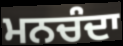
ਮਨਚੰਦਾ